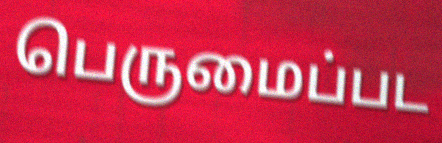
பெருமைப்பட